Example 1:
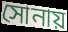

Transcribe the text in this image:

সোনায়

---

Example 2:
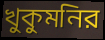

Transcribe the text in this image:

খুকুমনির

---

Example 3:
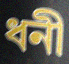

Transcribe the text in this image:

ধনী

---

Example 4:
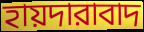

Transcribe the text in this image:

হায়দারাবাদ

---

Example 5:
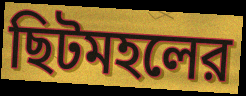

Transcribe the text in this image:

ছিটমহলের